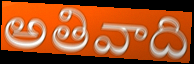
అతివాది